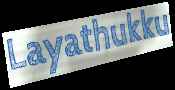
Layathukku